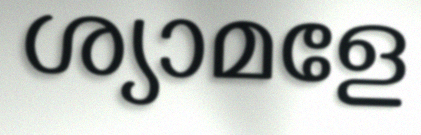
ശ്യാമളേ